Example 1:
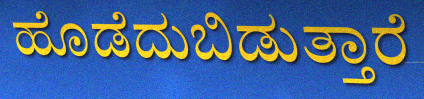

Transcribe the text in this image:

ಹೊಡೆದುಬಿಡುತ್ತಾರೆ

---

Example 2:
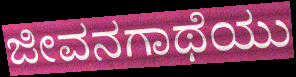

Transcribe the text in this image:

ಜೀವನಗಾಥೆಯು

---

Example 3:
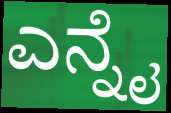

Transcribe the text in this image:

ಎನ್ನೈ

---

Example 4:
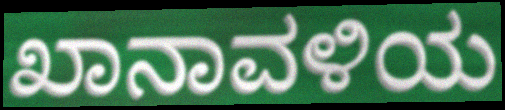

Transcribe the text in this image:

ಖಾನಾವಳಿಯ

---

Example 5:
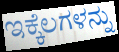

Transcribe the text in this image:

ಇಕ್ಕೆಲಗಳನ್ನು